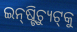
ଇନ୍‌ଷ୍ଟିଚ୍ୟୁଟ୍‌କୁ